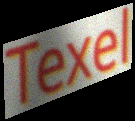
Texel